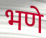
भणे